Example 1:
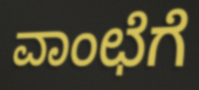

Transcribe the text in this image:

ವಾಂಛೆಗೆ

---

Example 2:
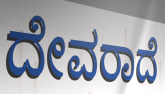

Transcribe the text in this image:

ದೇವರಾದೆ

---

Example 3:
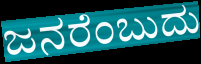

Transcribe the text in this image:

ಜನರೆಂಬುದು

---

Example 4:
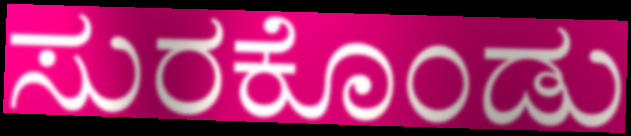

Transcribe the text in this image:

ಸುರಕೊಂಡು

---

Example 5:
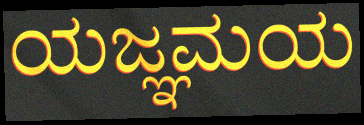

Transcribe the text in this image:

ಯಜ್ಞಮಯ